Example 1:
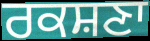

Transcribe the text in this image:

ਰਕਸ਼ਣਾ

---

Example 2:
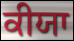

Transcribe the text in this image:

ਕੀਯਾ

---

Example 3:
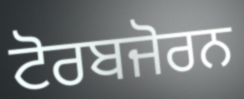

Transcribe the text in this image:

ਟੋਰਬਜੋਰਨ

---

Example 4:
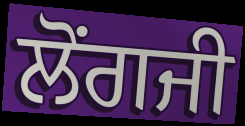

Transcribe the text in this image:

ਲੋਂਗਜੀ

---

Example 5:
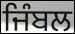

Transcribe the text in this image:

ਜਿੰਬਲ